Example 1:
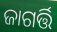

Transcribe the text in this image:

ଜାଗର୍ତ୍ତି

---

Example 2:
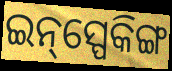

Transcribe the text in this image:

ଇନ୍‌ସ୍ପେକିଙ୍ଗ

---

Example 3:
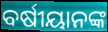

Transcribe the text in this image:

ବର୍ଷୀୟାନଙ୍କ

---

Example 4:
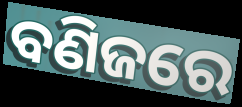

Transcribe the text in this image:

ବଣିଜରେ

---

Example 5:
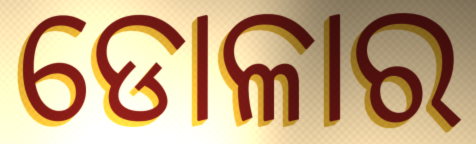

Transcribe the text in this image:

ଡୋଳାର